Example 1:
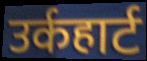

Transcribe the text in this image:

उर्कहार्ट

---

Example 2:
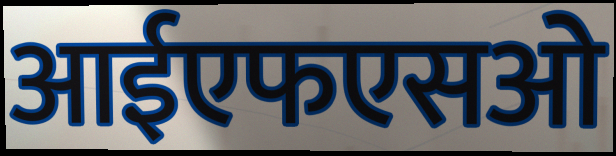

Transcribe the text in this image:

आईएफएसओ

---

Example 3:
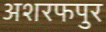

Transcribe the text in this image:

अशरफपुर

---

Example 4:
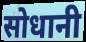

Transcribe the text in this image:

सोधानी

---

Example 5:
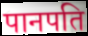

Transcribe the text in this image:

पानपति